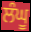
ਲੰਘੂ